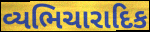
વ્યભિચારાદિક